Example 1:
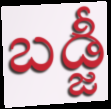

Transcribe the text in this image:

బడ్జీ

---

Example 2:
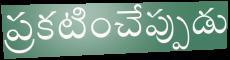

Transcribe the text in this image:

ప్రకటించేప్పుడు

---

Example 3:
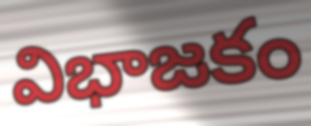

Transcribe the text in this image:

విభాజకం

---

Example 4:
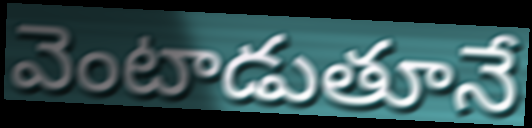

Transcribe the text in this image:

వెంటాడుతూనే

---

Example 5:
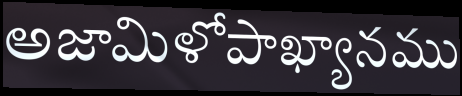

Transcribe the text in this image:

అజామిళోపాఖ్యానము